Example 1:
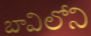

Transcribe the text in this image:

బావిలోని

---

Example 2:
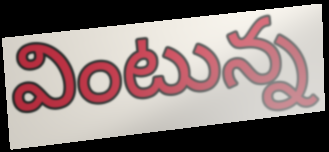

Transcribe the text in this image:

వింటున్న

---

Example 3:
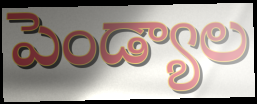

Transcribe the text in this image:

పెండ్యాల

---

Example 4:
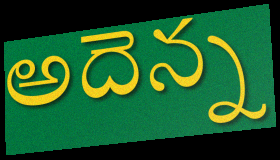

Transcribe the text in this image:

అదెన్న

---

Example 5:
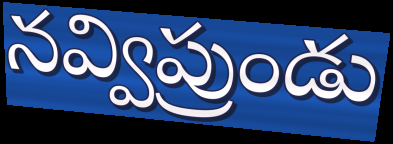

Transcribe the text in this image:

నవ్విప్రుండు